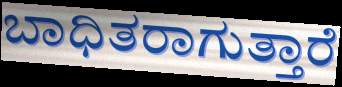
ಬಾಧಿತರಾಗುತ್ತಾರೆ